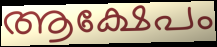
ആക്ഷേപം